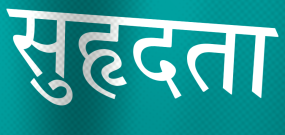
सुहृदता